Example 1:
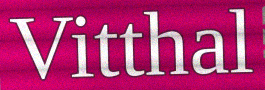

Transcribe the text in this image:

Vitthal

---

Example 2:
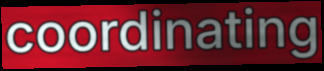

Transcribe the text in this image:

coordinating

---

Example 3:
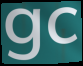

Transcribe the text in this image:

gc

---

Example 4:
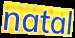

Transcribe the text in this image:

natal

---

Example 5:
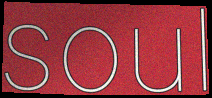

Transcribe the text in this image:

soul